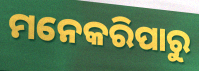
ମନେକରିପାରୁ